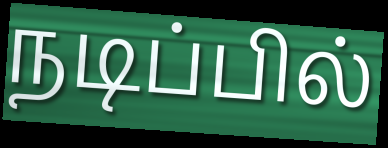
நடிப்பில்